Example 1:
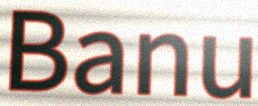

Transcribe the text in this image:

Banu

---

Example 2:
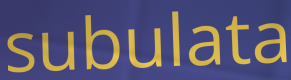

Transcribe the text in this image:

subulata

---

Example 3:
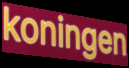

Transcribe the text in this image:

koningen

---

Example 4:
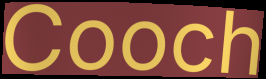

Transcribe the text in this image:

Cooch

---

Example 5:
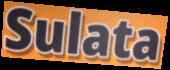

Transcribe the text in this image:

Sulata